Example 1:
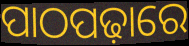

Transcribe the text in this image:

ପାଠପଢ଼ାରେ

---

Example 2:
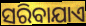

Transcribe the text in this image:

ସରିବାଯାଏ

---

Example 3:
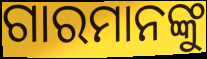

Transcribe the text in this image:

ଗାରମାନଙ୍କୁ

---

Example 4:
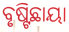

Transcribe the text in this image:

ବୃଷ୍ଟିଛାୟା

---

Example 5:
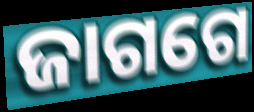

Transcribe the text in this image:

ଜାଗଗେ